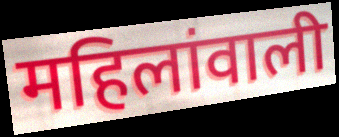
महिलांवाली